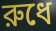
রুধে